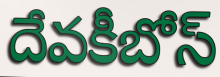
దేవకీబోస్